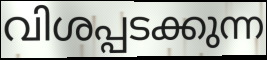
വിശപ്പടക്കുന്ന